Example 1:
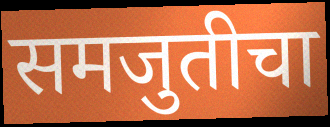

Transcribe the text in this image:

समजुतीचा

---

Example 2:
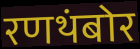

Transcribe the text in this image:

रणथंबोर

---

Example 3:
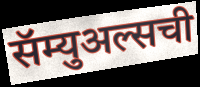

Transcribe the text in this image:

सॅम्युअल्सची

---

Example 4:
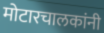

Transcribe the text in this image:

मोटारचालकांनी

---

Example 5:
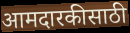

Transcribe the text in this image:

आमदारकीसाठी